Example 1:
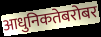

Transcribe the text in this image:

आधुनिकतेबरोबर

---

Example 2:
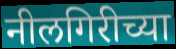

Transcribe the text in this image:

नीलगिरीच्या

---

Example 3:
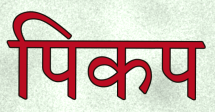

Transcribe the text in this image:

पिकप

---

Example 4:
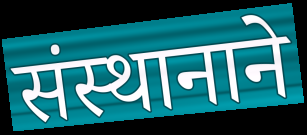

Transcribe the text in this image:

संस्थानाने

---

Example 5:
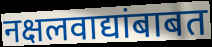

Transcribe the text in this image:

नक्षलवाद्यांबाबत